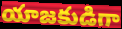
యాజకుడిగా